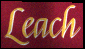
Leach